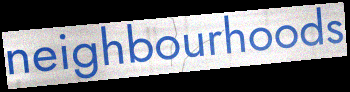
neighbourhoods